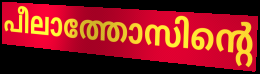
പീലാത്തോസിന്റെ